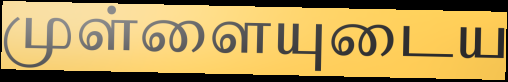
முள்ளையுடைய